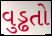
વુડ્ઢતો